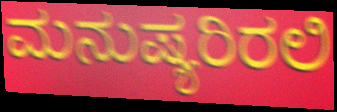
ಮನುಷ್ಯರಿರಲಿ